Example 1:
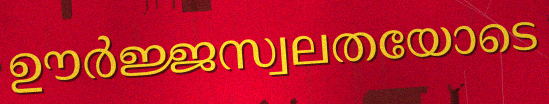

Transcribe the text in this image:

ഊർജ്ജസ്വലതയോടെ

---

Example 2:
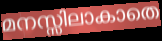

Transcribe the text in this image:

മനസ്സിലാകാതെ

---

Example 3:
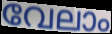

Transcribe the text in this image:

വേലാം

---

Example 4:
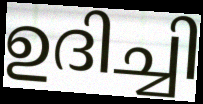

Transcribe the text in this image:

ഉദിച്ചി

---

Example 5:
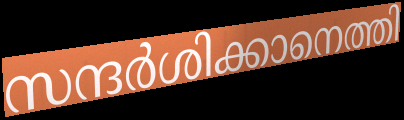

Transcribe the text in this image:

സന്ദർശിക്കാനെത്തി